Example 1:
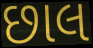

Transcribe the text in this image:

છાલ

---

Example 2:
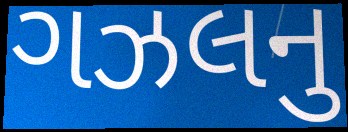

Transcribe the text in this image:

ગઝલનુ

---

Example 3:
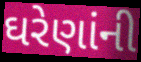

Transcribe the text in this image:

ઘરેણાંની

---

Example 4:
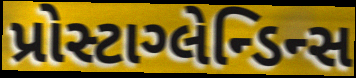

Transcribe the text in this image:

પ્રોસ્ટાગ્લેન્ડિન્સ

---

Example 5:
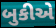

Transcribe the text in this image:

બુકીએ